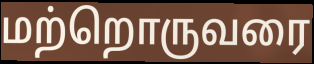
மற்றொருவரை